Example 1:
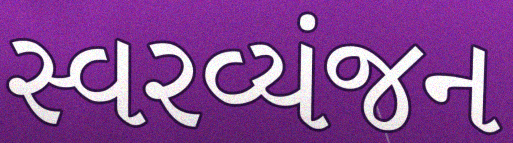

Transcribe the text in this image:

સ્વરવ્યંજન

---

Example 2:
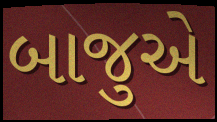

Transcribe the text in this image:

બાજુએ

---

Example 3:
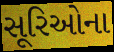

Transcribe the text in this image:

સૂરિઓના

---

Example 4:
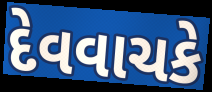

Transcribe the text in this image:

દેવવાચકે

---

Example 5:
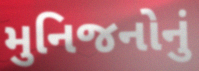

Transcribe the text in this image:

મુનિજનોનું